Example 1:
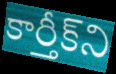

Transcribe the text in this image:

కార్తీక్‌ని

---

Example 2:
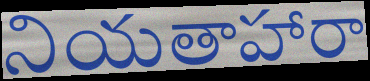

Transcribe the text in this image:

నియతాహారా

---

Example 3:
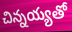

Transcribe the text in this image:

చిన్నయ్యతో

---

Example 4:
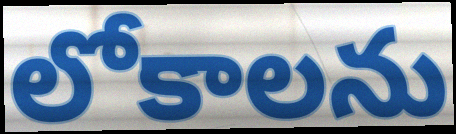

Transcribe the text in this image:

లోకాలను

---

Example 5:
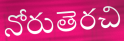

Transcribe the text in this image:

నోరుతెరచి